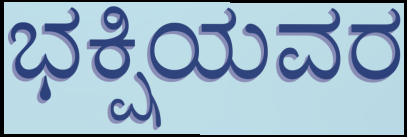
ಭಕ್ಷಿಯವರ